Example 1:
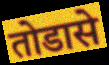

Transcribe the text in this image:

तोडासे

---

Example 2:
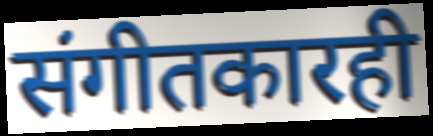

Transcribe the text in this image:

संगीतकारही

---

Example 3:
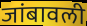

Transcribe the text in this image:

जांबावली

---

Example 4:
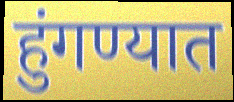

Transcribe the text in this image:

हुंगण्यात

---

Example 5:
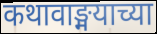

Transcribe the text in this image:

कथावाङ्मयाच्या